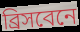
ব্রিসবেনে